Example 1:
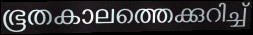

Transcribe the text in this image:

ഭൂതകാലത്തെക്കുറിച്ച്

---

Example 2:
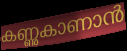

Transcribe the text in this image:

കണ്ണുകാണാൻ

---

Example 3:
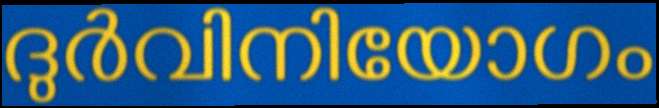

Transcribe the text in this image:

ദുർവിനിയോഗം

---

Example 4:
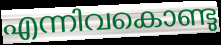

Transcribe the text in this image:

എന്നിവകൊണ്ടു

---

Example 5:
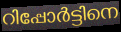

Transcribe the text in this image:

റിപ്പോർട്ടിനെ